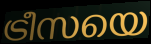
ട്രീസയെ